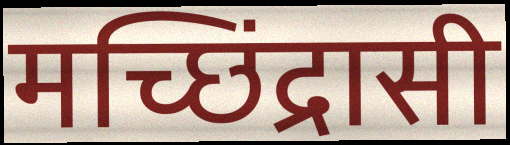
मच्छिंद्रासी